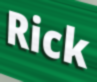
Rick